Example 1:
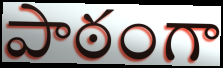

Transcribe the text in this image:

పాఠంగా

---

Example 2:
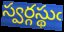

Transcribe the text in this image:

స్వర్గస్థుఁ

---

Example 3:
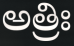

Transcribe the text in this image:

అత్రిః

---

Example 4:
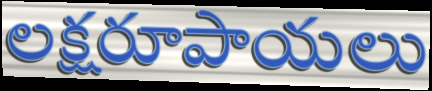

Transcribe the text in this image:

లక్షరూపాయలు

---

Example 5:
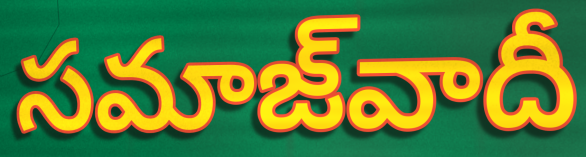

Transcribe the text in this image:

సమాజ్‌వాదీ